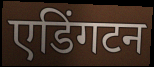
एडिंगटन